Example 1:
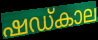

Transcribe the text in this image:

ഷഡ്കാല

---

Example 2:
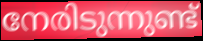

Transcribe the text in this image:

നേരിടുന്നുണ്ട്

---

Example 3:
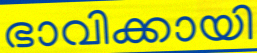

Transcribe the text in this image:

ഭാവിക്കായി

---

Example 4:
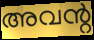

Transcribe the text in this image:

അവന്റ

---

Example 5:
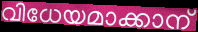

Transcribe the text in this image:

വിധേയമാക്കാന്